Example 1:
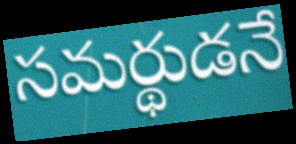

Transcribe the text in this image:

సమర్థుడనే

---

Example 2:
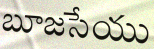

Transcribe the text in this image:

బూజసేయు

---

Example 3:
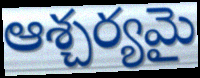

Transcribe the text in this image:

ఆశ్చర్యమై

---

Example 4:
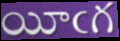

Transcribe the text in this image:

యీఁగ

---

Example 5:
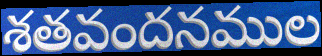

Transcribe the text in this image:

శతవందనముల